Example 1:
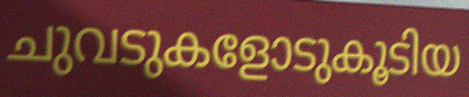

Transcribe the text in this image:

ചുവടുകളോടുകൂടിയ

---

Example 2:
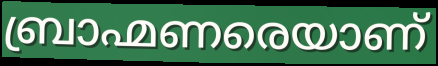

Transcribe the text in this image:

ബ്രാഹ്മണരെയാണ്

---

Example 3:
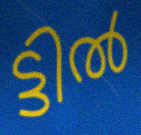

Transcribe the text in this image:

ട്ടിൽ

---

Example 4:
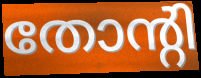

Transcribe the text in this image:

തോന്റി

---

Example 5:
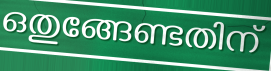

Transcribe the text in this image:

ഒതുങ്ങേണ്ടതിന്